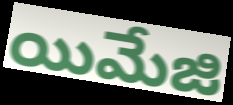
యిమేజి